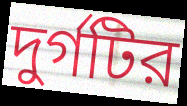
দুর্গটির